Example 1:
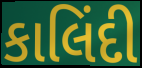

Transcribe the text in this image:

કાલિંદી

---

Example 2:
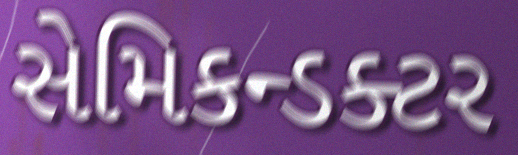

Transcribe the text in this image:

સેમિકન્ડક્ટર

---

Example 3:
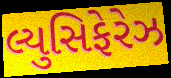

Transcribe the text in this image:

લ્યુસિફેરેઝ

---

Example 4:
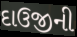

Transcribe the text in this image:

દાઉજીની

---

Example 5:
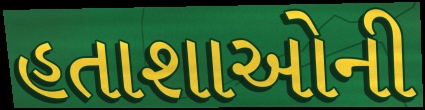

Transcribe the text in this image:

હતાશાઓની